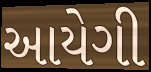
આયેગી